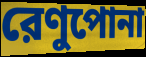
রেণুপোনা